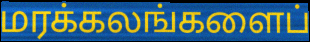
மரக்கலங்களைப்